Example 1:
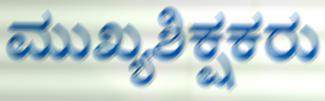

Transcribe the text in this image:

ಮುಖ್ಯಶಿಕ್ಷಕರು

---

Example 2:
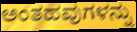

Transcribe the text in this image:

ಅಂತಹವುಗಳನ್ನು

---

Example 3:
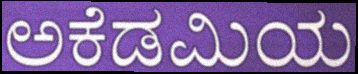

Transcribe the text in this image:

ಅಕೆಡಮಿಯ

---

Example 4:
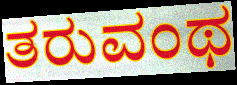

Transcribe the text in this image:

ತರುವಂಥ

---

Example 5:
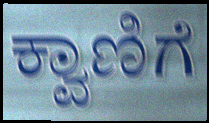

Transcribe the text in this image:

ಕ್ವಾಣಿಗೆ